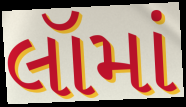
લૉમાં